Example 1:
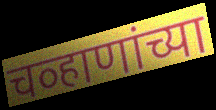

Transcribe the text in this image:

चव्हाणांच्या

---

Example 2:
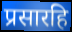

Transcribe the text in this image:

प्रसारहि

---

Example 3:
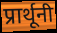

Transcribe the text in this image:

प्रार्थूनी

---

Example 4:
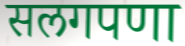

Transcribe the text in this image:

सलगपणा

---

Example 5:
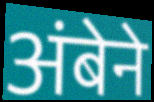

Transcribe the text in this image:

अंबेने